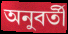
অনুবর্তী